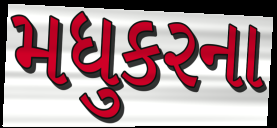
મધુકરના